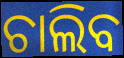
ଚାଲିବ